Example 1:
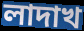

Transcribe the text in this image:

লাদাখ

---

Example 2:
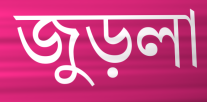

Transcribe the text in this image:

জুড়লা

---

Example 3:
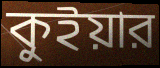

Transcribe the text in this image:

কুইয়ার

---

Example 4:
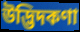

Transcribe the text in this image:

উদ্ভিদকণা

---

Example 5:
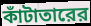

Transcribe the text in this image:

কাঁটাতারের